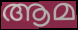
ആമ